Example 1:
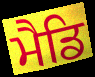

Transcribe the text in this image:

ਮੈਡਿ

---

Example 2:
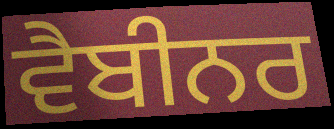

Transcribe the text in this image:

ਵੈਬੀਨਰ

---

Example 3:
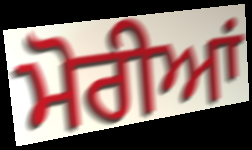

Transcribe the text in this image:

ਮੋਰੀਆਂ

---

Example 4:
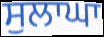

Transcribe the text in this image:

ਸੁਲਾਘਾ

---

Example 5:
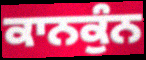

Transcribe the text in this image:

ਕਾਨਕੁੰਨ